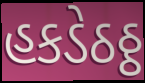
હકડેઠઠ્ઠ